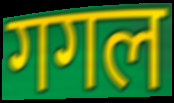
गगल